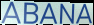
ABANA